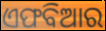
ଏଫବିଆର